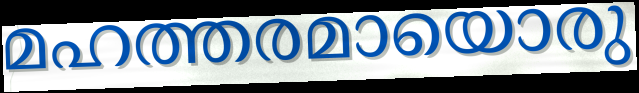
മഹത്തരമായൊരു